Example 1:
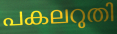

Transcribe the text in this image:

പകലറുതി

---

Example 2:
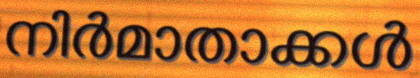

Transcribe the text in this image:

നിർമാതാക്കൾ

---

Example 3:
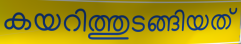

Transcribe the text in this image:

കയറിത്തുടങ്ങിയത്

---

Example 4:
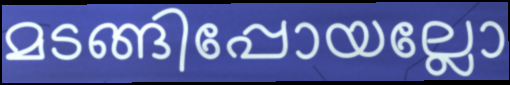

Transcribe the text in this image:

മടങ്ങിപ്പോയല്ലോ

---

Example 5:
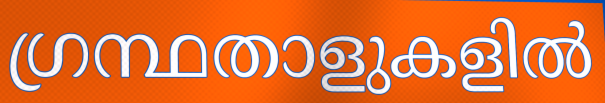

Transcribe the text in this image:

ഗ്രന്ഥതാളുകളിൽ